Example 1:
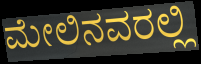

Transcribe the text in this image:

ಮೇಲಿನವರಲ್ಲಿ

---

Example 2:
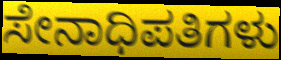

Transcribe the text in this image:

ಸೇನಾಧಿಪತಿಗಳು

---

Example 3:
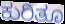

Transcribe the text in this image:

ಕುರಿತೂ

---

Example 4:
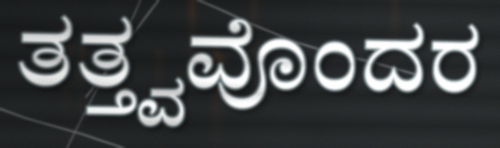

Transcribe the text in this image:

ತತ್ತ್ವವೊಂದರ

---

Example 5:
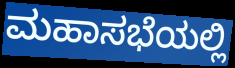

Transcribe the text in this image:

ಮಹಾಸಭೆಯಲ್ಲಿ